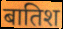
बातिश